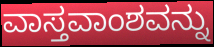
ವಾಸ್ತವಾಂಶವನ್ನು